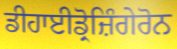
ਡੀਹਾਈਡ੍ਰੋਜ਼ਿੰਗੇਰੋਨ